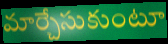
మార్చేసుకుంటూ